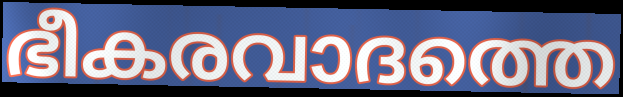
ഭീകരവാദത്തെ